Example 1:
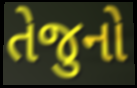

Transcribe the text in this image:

તેજુનો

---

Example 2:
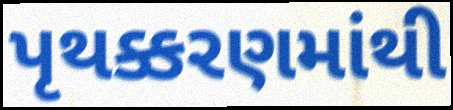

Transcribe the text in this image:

પૃથક્કરણમાંથી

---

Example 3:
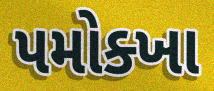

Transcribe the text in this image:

પમોક્ખા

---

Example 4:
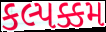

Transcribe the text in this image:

કલ્પક્કમ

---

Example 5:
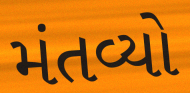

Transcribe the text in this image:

મંતવ્યો